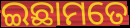
ଇଛାମତେ